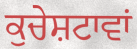
ਕੁਚੇਸ਼ਟਾਵਾਂ